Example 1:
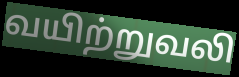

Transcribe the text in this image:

வயிற்றுவலி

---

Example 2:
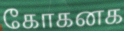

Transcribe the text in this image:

கோகனக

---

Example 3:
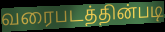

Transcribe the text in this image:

வரைபடத்தின்படி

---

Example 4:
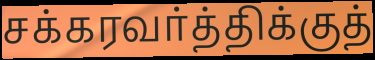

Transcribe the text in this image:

சக்கரவர்த்திக்குத்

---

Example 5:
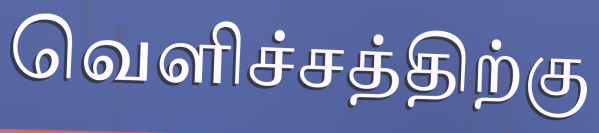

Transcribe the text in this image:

வெளிச்சத்திற்கு